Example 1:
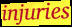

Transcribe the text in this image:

injuries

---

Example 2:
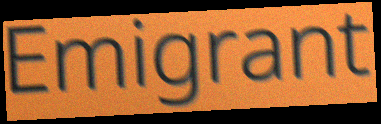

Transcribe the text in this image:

Emigrant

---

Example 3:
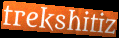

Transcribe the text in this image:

trekshitiz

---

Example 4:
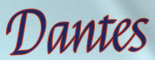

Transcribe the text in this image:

Dantes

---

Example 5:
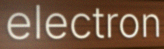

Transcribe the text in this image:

electron